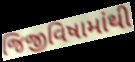
જિજીવિષામાંથી